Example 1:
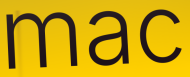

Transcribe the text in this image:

mac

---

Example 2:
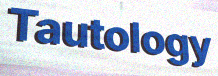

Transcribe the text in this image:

Tautology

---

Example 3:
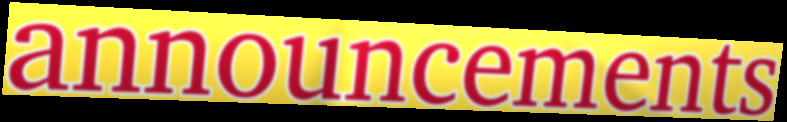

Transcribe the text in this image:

announcements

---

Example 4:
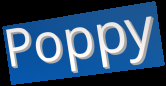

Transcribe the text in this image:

Poppy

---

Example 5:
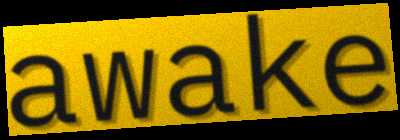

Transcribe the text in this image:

awake